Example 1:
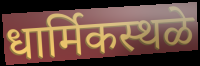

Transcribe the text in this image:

धार्मिकस्थळे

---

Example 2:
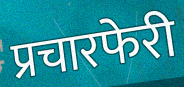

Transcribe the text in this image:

प्रचारफेरी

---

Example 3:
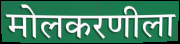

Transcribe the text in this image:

मोलकरणीला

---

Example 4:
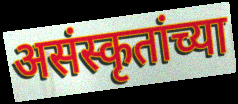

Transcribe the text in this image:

असंस्कृतांच्या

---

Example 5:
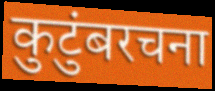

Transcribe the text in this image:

कुटुंबरचना